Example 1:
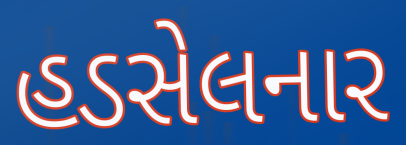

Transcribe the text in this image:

હડસેલનાર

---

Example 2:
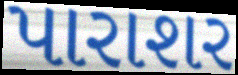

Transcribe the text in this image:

પારાશર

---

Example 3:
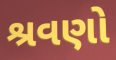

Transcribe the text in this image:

શ્રવણો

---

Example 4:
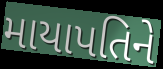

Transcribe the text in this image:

માયાપતિને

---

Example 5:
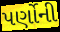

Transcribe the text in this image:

પર્ણોની